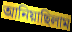
আনিয়াছিলাম